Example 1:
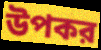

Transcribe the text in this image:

উপকর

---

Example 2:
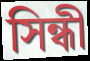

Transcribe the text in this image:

সিন্ধী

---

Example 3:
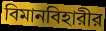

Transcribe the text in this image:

বিমানবিহারীর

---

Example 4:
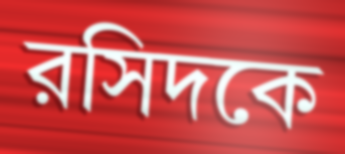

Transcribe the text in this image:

রসিদকে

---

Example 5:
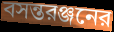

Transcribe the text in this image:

বসন্তরঞ্জনের